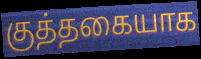
குத்தகையாக